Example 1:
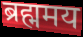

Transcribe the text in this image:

ब्रह्ममय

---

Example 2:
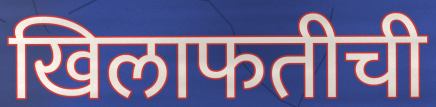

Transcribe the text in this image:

खिलाफतीची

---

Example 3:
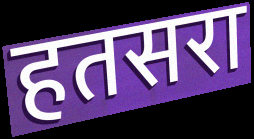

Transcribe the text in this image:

हतसरा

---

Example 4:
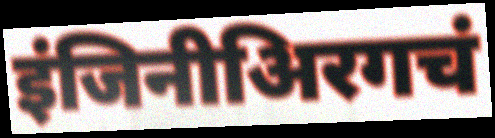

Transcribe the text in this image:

इंजिनीअिरगचं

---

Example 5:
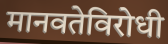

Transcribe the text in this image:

मानवतेविरोधी